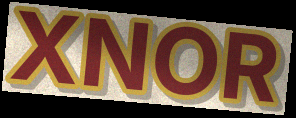
XNOR